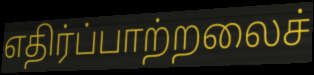
எதிர்ப்பாற்றலைச்